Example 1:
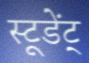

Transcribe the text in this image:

स्टूडेंट्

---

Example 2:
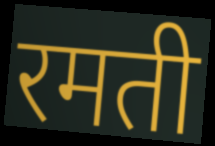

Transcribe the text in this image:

रमती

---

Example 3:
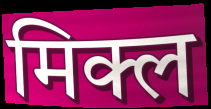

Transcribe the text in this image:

मिक्ल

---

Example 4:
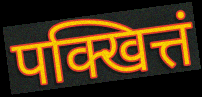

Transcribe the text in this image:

पक्खित्तं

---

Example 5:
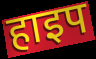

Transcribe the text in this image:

हाइप